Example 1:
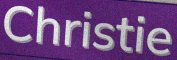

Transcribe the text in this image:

Christie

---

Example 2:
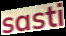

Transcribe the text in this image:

sasti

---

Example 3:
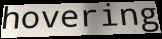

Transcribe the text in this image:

hovering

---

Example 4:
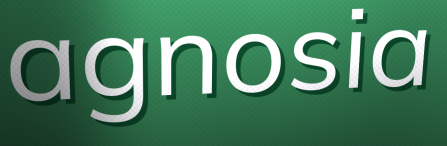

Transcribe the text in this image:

agnosia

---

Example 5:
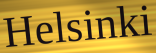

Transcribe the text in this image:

Helsinki